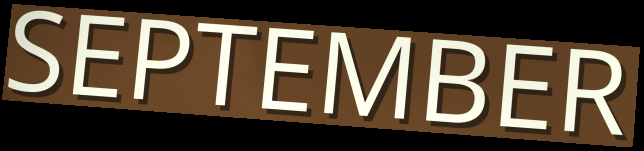
SEPTEMBER